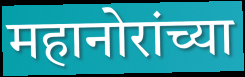
महानोरांच्या